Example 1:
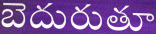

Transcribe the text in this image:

బెదురుతూ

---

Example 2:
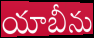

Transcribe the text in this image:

యాబీను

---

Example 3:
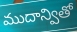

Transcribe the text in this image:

ముదాన్వితో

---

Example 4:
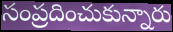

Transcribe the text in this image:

సంప్రదించుకున్నారు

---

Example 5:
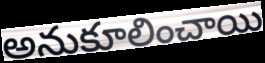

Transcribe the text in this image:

అనుకూలించాయి